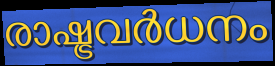
രാഷ്ട്രവർധനം